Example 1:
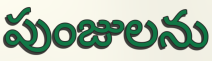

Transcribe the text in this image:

పుంజులను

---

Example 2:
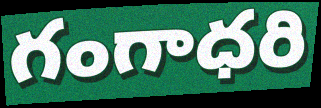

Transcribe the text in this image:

గంగాధరి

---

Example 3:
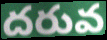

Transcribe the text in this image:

దరువ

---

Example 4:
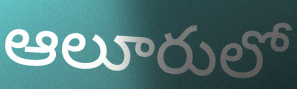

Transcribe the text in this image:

ఆలూరులో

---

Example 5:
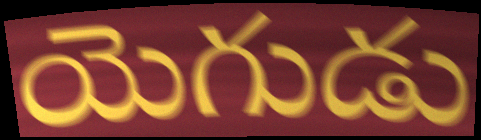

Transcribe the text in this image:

యెగుడు